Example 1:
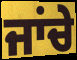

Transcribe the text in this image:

ਜਾਂਚੇ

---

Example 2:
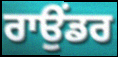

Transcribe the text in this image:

ਰਾਉਂਡਰ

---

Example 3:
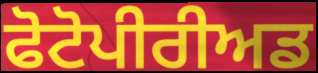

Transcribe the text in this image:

ਫੋਟੋਪੀਰੀਅਡ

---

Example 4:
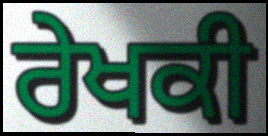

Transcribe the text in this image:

ਰੇਖਕੀ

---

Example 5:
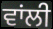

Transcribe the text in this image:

ਵਾਂਲੀ